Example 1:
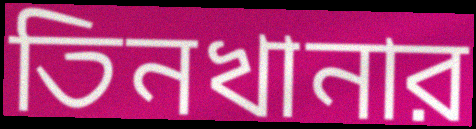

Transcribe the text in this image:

তিনখানার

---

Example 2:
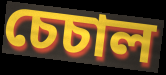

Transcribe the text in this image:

চেচাল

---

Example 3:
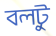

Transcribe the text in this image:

বলটু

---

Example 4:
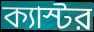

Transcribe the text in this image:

ক্যাস্টর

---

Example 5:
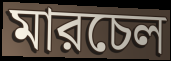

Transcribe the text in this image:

মারচেল